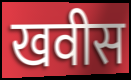
खवीस